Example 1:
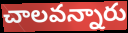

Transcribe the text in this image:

చాలవన్నారు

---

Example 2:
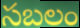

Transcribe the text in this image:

సబలం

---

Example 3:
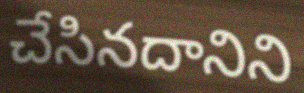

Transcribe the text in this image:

చేసినదానిని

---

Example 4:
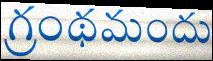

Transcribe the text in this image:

గ్రంథమందు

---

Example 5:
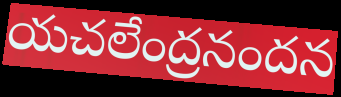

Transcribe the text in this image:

యచలేంద్రనందన